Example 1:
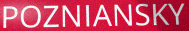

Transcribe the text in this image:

POZNIANSKY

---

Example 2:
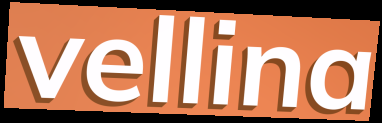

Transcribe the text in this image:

vellina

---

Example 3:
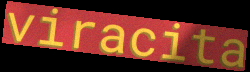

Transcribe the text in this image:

viracita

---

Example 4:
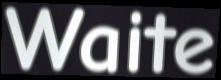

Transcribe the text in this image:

Waite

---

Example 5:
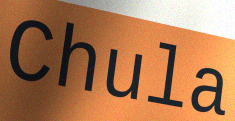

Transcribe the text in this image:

Chula